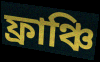
ফ্রাঞ্চি